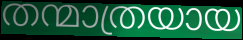
തന്മാത്രയായ